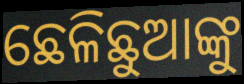
ଛେଳିଛୁଆଙ୍କୁ